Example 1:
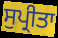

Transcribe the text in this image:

ਸੁਪ੍ਰੀਤਾ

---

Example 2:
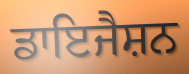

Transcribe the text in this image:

ਡਾਇਜੈਸ਼ਨ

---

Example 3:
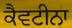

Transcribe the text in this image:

ਕੈਵਟੀਨਾ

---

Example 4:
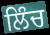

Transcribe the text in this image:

ਲਿੰਚ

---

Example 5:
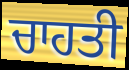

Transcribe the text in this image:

ਚਾਹਤੀ